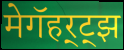
मेगॅहर्ट्‌झ